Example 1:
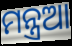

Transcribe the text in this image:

ମନ୍ତ୍ରଆ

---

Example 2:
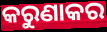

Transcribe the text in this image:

କରୁଣାକର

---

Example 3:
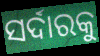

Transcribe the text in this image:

ସର୍ଦାରକୁ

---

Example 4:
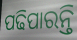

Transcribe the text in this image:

ପଢିପାରନ୍ତି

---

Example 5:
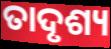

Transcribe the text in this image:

ତାଦୃଶ୍ୟ